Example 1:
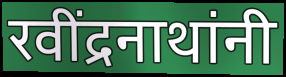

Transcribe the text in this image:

रवींद्रनाथांनी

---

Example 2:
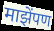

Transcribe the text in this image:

माझेंपण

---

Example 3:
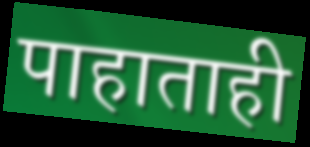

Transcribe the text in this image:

पाहाताही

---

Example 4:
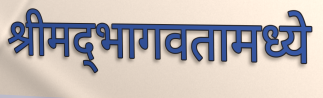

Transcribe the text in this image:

श्रीमद्‌भागवतामध्ये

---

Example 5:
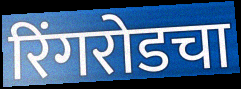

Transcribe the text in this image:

रिंगरोडचा